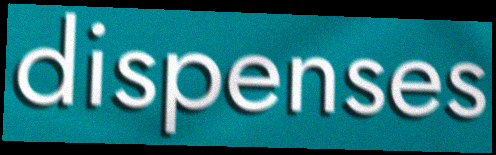
dispenses